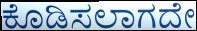
ಕೊಡಿಸಲಾಗದೇ